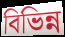
বিভিন্ন